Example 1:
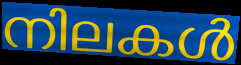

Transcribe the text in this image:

നിലകൾ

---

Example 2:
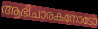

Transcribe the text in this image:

ആഭിചാരകനോടോ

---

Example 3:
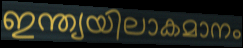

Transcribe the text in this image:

ഇന്ത്യയിലാകമാനം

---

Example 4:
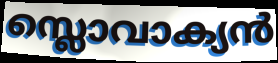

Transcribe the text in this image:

സ്ലൊവാക്യൻ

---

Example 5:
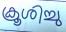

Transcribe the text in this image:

ക്രൂശിച്ചു